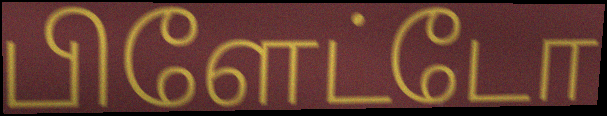
பிளேட்டோ